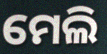
ମେଲି